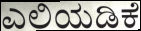
ಎಲಿಯಡಿಕೆ